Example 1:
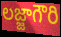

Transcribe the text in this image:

లజ్జాగౌరి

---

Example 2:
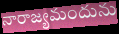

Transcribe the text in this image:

నారాజ్యమందును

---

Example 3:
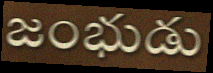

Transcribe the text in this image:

జంభుడు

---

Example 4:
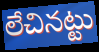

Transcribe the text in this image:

లేచినట్టు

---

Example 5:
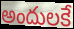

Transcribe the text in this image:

అందులకే